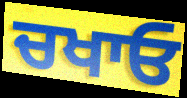
ਚਖਾਓ